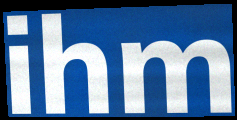
ihm